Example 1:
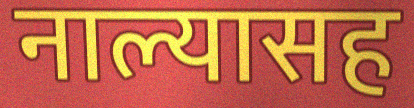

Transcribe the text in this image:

नाल्यासह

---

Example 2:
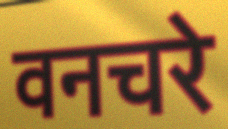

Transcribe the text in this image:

वनचरे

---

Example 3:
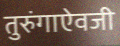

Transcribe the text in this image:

तुरुंगाऐवजी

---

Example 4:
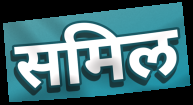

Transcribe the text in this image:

समिल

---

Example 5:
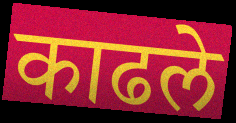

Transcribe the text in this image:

काढले